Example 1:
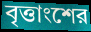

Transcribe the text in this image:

বৃত্তাংশের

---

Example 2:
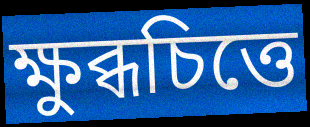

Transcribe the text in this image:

ক্ষুব্ধচিত্তে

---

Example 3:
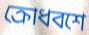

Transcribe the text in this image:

ক্রোধবশে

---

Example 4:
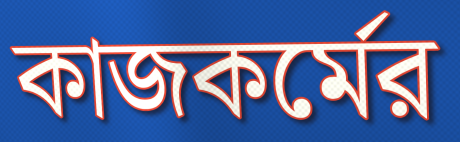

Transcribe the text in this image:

কাজকর্মের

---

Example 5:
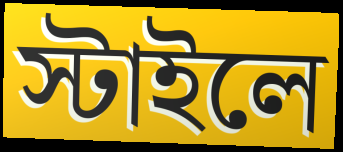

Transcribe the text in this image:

স্টাইলে